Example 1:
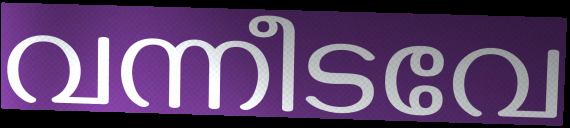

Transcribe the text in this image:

വന്നീടവേ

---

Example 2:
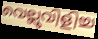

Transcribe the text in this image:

വെല്ലുവിളിച്ച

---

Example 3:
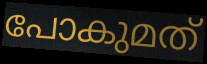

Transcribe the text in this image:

പോകുമത്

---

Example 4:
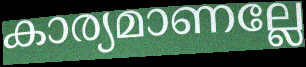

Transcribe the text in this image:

കാര്യമാണല്ലേ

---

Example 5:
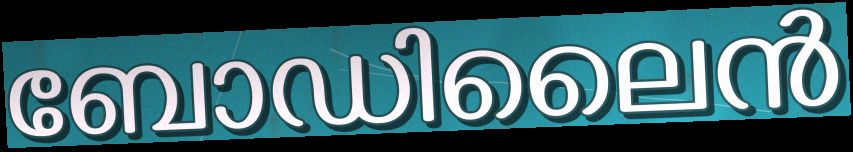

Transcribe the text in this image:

ബോഡിലൈൻ